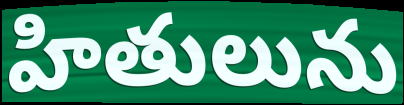
హితులును